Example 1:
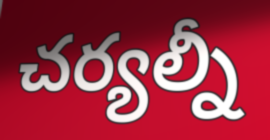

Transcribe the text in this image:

చర్యల్నీ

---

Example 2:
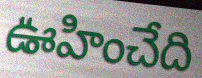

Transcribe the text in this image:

ఊహించేది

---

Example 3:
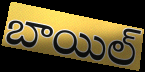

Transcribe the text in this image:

బాయిల్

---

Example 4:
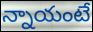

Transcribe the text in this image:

న్నాయంటే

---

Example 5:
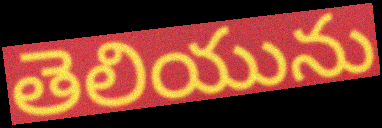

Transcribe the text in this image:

తెలియును